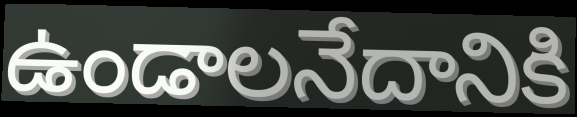
ఉండాలనేదానికి